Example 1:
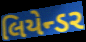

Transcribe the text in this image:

લિયેન્ડર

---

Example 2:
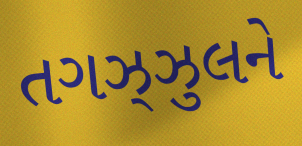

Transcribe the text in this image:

તગઝ્ઝુલને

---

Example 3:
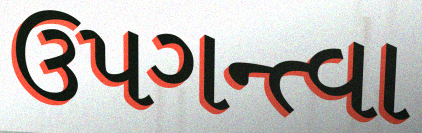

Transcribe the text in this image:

ઉપગન્ત્વા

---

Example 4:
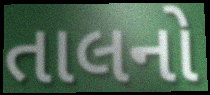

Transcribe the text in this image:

તાલનો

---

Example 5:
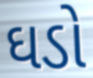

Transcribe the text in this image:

ઘડો